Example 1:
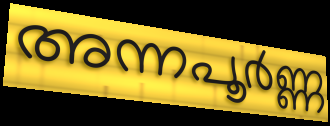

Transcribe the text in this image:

അന്നപൂർണ്ണ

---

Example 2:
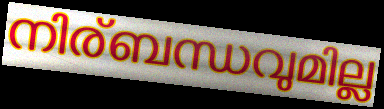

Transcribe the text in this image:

നിര്ബന്ധവുമില്ല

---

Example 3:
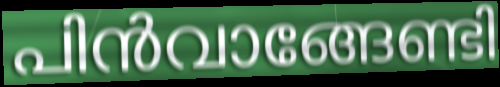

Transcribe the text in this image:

പിൻവാങ്ങേണ്ടി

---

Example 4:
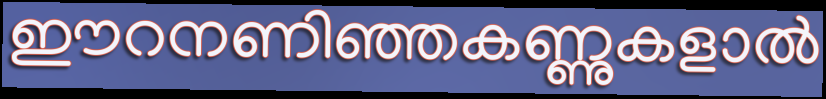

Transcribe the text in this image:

ഈറനണിഞ്ഞകണ്ണുകളാൽ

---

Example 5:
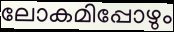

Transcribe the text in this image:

ലോകമിപ്പോഴും